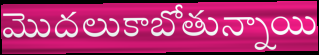
మొదలుకాబోతున్నాయి